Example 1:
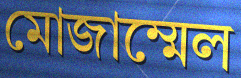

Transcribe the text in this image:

মোজাম্মেল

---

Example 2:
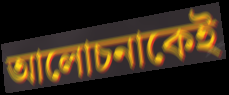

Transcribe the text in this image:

আলোচনাকেই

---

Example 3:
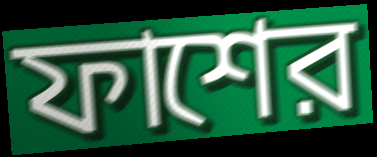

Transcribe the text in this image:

ফাশের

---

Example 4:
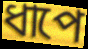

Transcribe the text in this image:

ধাপে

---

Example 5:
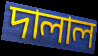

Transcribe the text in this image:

দালাল